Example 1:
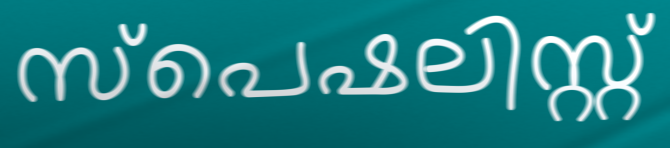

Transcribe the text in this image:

സ്പെഷലിസ്റ്റ്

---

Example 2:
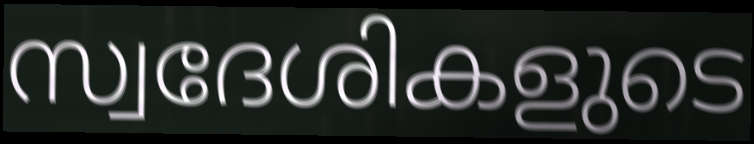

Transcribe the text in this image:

സ്വദേശികളുടെ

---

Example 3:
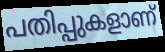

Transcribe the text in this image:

പതിപ്പുകളാണ്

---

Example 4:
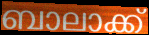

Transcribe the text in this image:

ബാലാക്ക്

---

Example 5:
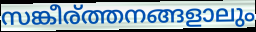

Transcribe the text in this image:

സങ്കീര്ത്തനങ്ങളാലും